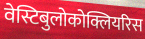
वेस्टिबुलोकोक्लियरिस